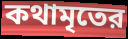
কথামৃতের